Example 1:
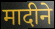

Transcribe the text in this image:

मादीने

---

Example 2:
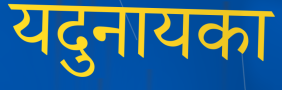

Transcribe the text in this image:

यदुनायका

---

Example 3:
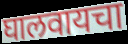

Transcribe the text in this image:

घालवायचा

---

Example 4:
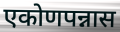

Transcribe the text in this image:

एकोणपन्नास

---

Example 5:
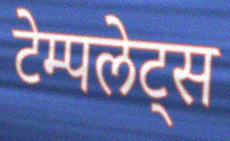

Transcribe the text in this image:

टेम्पलेट्स